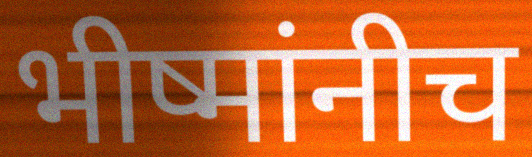
भीष्मांनीच